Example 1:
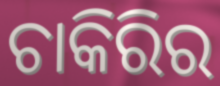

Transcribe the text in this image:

ଚାକିରିର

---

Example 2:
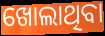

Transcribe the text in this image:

ଖୋଲାଥିବା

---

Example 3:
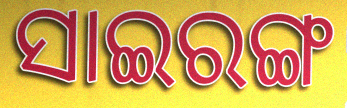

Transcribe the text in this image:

ସାଇରଙ୍ଗ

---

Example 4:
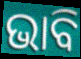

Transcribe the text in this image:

ଭାବି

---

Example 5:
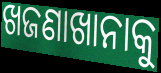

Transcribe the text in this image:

ଖଜଣାଖାନାକୁ